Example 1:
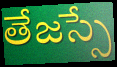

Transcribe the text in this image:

తేజస్సే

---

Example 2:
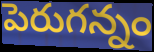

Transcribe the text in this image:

పెరుగన్నం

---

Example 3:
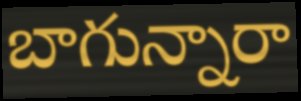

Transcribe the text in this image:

బాగున్నారా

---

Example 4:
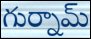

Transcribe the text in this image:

గుర్నామ్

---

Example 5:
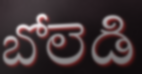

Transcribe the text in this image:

బోలెడి